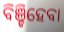
ବିଞ୍ଚିହେବା